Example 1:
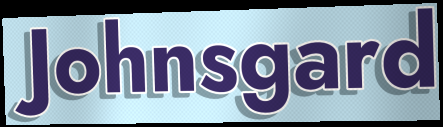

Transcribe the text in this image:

Johnsgard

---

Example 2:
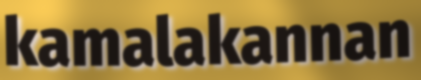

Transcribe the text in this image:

kamalakannan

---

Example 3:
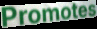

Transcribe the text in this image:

Promotes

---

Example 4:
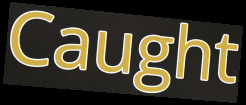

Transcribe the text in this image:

Caught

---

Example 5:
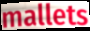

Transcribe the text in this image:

mallets